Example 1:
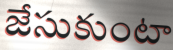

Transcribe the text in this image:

జేసుకుంటా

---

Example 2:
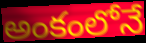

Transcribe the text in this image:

అంకంలోనే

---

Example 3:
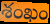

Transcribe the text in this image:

శంఖం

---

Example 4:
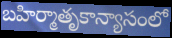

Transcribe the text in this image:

బహిర్మాతృకాన్యాసంలో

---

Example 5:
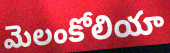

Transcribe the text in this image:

మెలంకోలియా